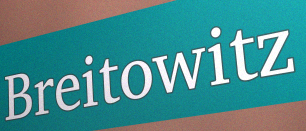
Breitowitz